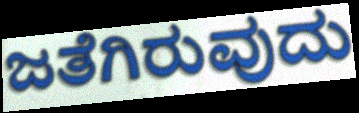
ಜತೆಗಿರುವುದು